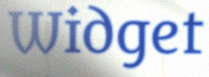
Widget